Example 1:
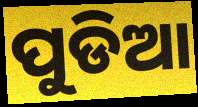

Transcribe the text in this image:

ପୁଡିଆ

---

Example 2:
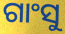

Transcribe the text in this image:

ଗାଂସୁ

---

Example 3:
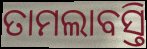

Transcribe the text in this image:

ତାମଲାବସ୍ତି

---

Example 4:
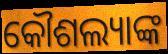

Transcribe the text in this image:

କୌଶଲ୍ୟାଙ୍କ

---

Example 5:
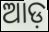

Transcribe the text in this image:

ଆଡ଼